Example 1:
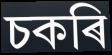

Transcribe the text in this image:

চকৰি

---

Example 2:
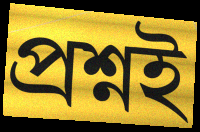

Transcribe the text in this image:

প্ৰশ্নই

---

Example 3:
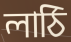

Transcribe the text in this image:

লাঠি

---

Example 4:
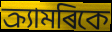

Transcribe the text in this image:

ক্ৰ্যামৰিকে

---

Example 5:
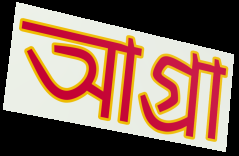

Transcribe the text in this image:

আগ্ৰা